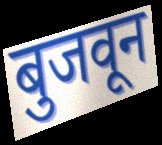
बुजवून